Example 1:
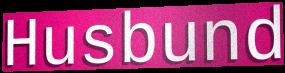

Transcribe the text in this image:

Husbund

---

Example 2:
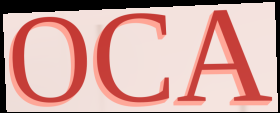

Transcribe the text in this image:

OCA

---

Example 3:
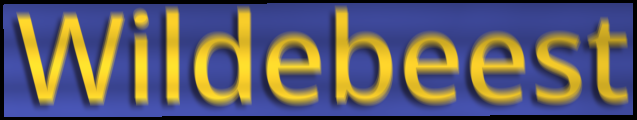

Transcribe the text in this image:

Wildebeest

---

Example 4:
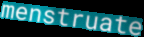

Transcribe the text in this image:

menstruate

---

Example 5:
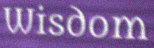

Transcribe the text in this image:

Wisdom